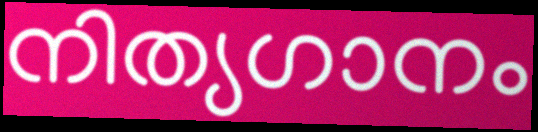
നിത്യഗാനം